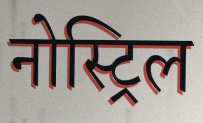
नोस्ट्रिल